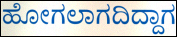
ಹೋಗಲಾಗದಿದ್ದಾಗ